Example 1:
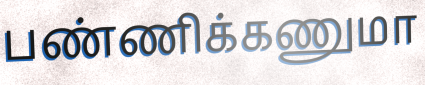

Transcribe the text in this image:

பண்ணிக்கணுமா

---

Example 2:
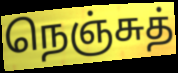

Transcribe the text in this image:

நெஞ்சுத்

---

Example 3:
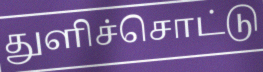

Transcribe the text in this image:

துளிச்சொட்டு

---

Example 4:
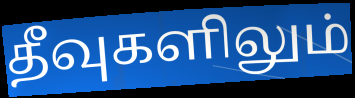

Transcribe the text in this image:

தீவுகளிலும்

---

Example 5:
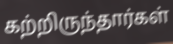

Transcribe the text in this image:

கற்றிருந்தார்கள்